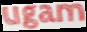
ugam